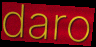
daro